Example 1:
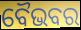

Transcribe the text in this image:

ବୈଭବର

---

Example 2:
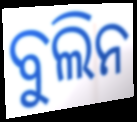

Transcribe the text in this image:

ବୁଲିନ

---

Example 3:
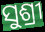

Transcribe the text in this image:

ସୁଶ୍ରୀ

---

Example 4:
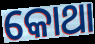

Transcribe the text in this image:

କୋଥା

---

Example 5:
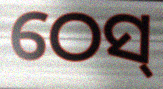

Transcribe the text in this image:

ଠେସ୍